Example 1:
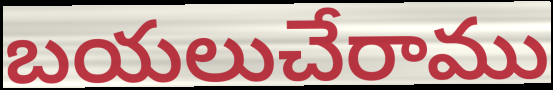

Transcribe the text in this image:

బయలుచేరాము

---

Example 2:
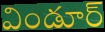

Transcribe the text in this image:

విండూర్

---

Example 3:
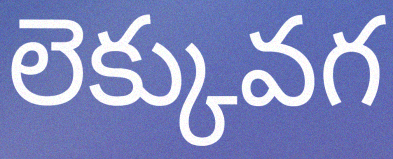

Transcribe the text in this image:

లెక్కువగ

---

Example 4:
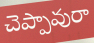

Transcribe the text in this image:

చెప్పావురా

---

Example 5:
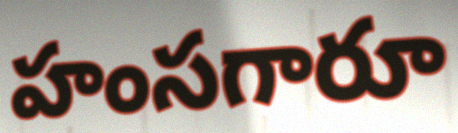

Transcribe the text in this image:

హంసగారూ